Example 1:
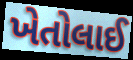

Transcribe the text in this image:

ખેતોલાઈ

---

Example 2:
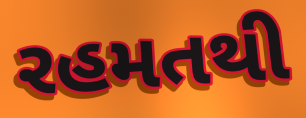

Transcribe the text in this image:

રહમતથી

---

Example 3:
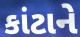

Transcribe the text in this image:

કાંટાને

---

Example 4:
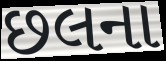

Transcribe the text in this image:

છલના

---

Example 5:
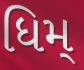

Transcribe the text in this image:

ધિમ્